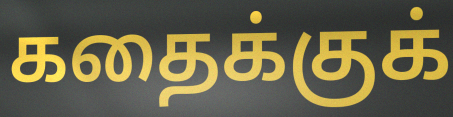
கதைக்குக்